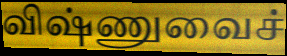
விஷ்ணுவைச்